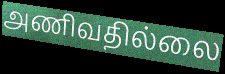
அணிவதில்லை